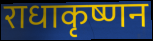
राधाकृष्णन